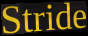
Stride